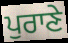
ਪੁਰਾਣੇ